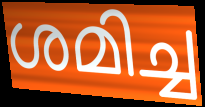
ശമിച്ച